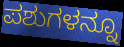
ಪಶುಗಳನ್ನೂ